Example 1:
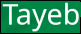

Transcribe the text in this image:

Tayeb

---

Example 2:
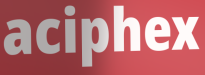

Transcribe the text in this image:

aciphex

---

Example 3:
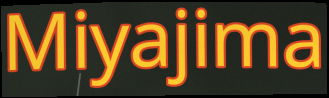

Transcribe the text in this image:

Miyajima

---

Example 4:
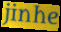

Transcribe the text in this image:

jinhe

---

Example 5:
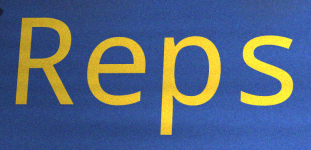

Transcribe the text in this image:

Reps